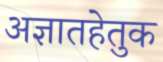
अज्ञातहेतुक